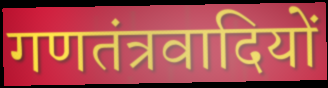
गणतंत्रवादियों